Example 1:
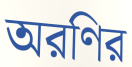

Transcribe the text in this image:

অরণির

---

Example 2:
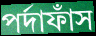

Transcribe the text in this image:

পর্দাফাঁস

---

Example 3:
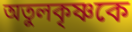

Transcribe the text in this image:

অতুলকৃষ্ণকে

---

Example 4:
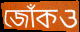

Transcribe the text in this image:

জোঁকও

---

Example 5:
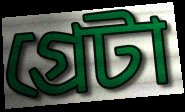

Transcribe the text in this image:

গ্রেটা